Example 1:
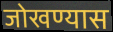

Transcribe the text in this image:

जोखण्यास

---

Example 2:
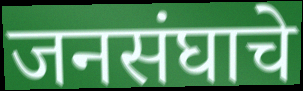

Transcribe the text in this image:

जनसंघाचे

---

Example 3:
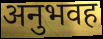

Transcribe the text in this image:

अनुभवह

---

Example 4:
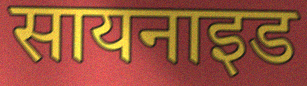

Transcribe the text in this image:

सायनाइड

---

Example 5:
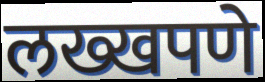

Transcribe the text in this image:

लख्खपणे